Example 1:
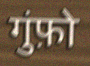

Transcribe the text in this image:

गुंफ़ो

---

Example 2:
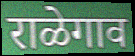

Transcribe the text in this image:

राळेगाव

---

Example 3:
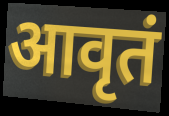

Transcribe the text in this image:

आवृतं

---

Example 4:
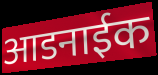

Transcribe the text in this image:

आडनाईक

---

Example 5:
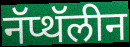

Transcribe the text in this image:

नॅप्थॅलीन